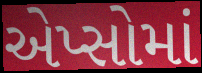
એપ્સોમાં